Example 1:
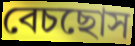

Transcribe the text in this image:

বেচছোস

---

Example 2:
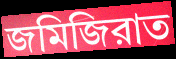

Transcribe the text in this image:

জমিজিরাত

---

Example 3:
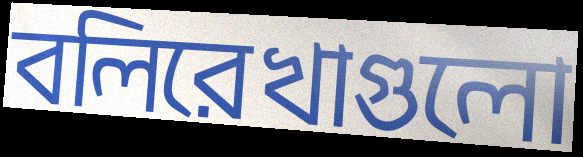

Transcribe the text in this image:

বলিরেখাগুলো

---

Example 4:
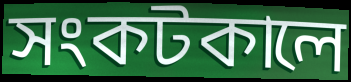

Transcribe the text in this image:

সংকটকালে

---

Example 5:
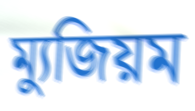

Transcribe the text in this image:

ম্যুজিয়ম